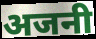
अजनी